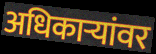
अधिकाऱ्यांवर